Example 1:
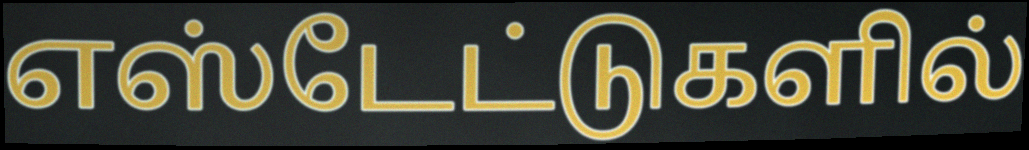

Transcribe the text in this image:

எஸ்டேட்டுகளில்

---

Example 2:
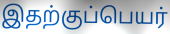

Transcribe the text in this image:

இதற்குப்பெயர்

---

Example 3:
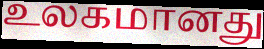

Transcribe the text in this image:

உலகமானது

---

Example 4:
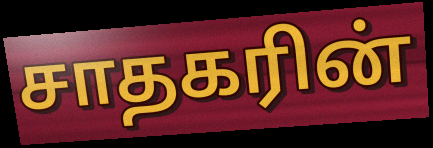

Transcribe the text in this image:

சாதகரின்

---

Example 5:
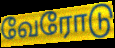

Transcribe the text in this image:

வேரோடு